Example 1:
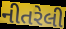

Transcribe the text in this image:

નીતરેલી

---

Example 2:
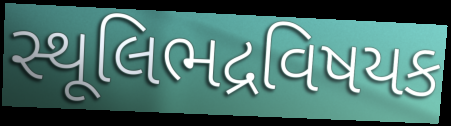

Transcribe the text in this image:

સ્થૂલિભદ્રવિષયક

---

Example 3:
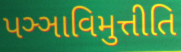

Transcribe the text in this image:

પઞ્ઞાવિમુત્તીતિ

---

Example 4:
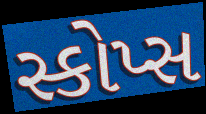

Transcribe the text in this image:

સ્કોપ્સ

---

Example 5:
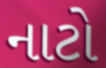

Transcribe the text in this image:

નાટો